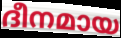
ദീനമായ